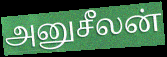
அனுசீலன்